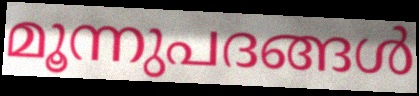
മൂന്നുപദങ്ങൾ